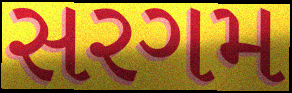
સરગમ